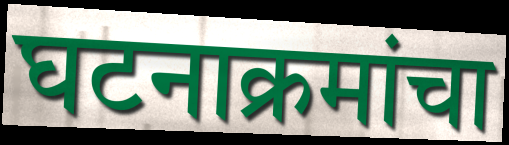
घटनाक्रमांचा